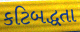
કટિબદ્ધતા